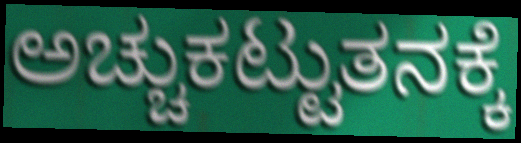
ಅಚ್ಚುಕಟ್ಟುತನಕ್ಕೆ